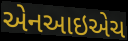
એનઆઇએચ